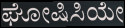
ಘೋಷಿಸಿಯೇ